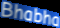
Bhabha